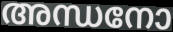
അന്ധനോ